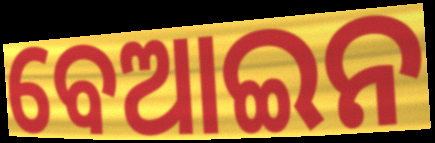
ବେଆଇନ